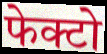
फेक्टो